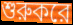
শুরুকরে